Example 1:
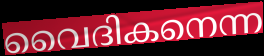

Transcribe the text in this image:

വൈദികനെന്ന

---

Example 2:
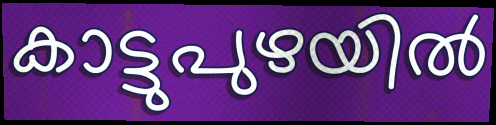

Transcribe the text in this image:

കാട്ടുപുഴയിൽ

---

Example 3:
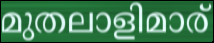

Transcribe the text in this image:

മുതലാളിമാര്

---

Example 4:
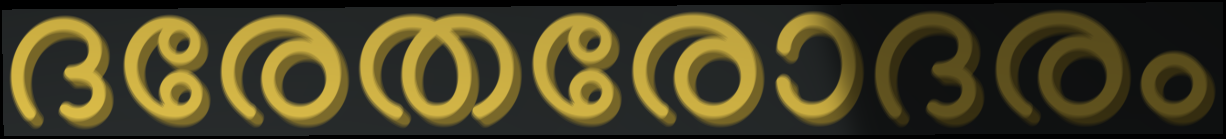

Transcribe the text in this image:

ദരേതരോദരം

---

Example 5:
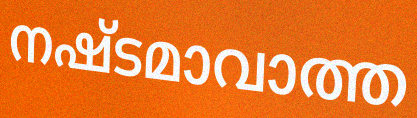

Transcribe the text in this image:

നഷ്ടമാവാത്ത